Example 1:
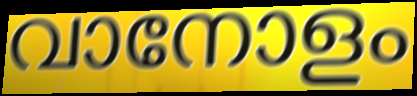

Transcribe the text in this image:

വാനോളം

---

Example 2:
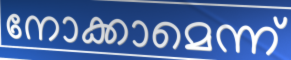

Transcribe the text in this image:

നോക്കാമെന്ന്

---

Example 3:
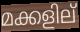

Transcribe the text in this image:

മക്കളില്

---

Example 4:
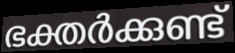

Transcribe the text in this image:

ഭക്തർക്കുണ്ട്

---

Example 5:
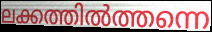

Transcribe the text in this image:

ലക്കത്തിൽത്തന്നെ